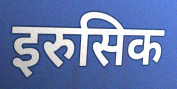
इरुसिक